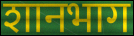
शानभाग